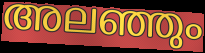
അലഞ്ഞും